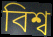
বিশ্ব